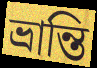
ভ্ৰান্তি